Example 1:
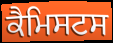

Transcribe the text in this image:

ਕੈਮਿਸਟਸ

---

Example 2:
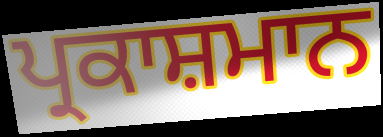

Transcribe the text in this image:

ਪ੍ਰਕਾਸ਼ਮਾਨ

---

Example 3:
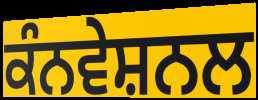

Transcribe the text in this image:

ਕੰਨਵੇਸ਼ਨਲ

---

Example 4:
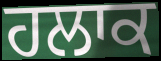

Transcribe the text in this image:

ਹਲਾਕ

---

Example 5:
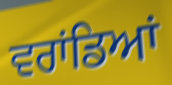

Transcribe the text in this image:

ਵਰਾਂਡਿਆਂ